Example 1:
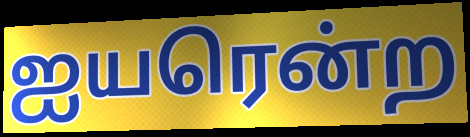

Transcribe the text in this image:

ஐயரென்ற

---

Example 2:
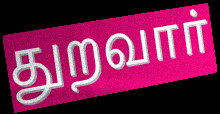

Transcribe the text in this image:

துறவார்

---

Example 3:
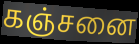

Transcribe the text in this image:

கஞ்சனை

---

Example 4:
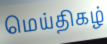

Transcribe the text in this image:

மெய்திகழ்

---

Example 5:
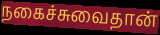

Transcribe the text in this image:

நகைச்சுவைதான்